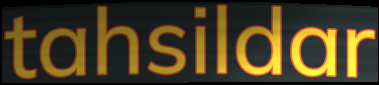
tahsildar